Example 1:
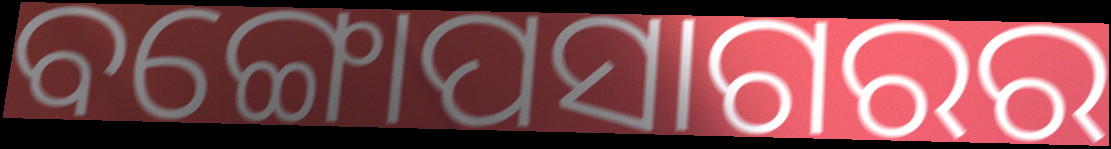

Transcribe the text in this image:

ବଙ୍ଗୋପସାଗରର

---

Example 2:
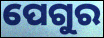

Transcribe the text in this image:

ପେଗୁର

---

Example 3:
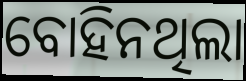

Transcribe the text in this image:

ବୋହିନଥିଲା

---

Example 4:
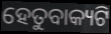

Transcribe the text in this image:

ହେତୁବାକ୍ୟଟି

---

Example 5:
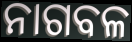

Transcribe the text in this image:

ନାଗବଳ